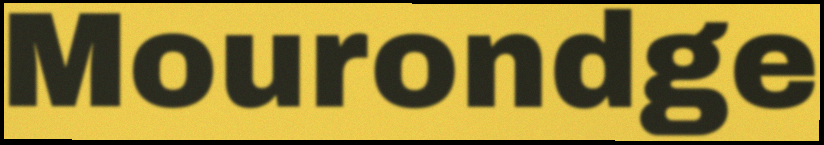
Mourondge